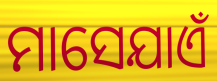
ମାସେଯାଏଁ